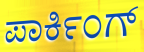
ಪಾರ್ಕಿಂಗ್